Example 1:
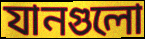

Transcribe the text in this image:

যানগুলো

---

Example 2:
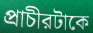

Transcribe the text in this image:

প্রাচীরটাকে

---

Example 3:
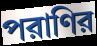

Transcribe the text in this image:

পরাণির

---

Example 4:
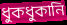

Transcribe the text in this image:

ধুকধুকানি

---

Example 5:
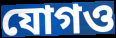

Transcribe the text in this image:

যোগও